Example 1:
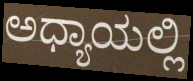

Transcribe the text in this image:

ಅಧ್ಯಾಯಲ್ಲಿ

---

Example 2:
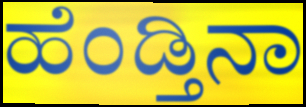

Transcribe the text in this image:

ಹೆಂಡ್ತಿನಾ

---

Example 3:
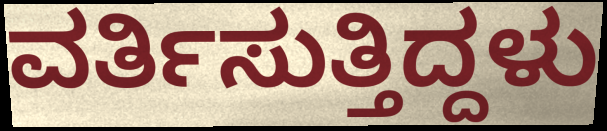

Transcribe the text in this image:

ವರ್ತಿಸುತ್ತಿದ್ದಳು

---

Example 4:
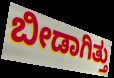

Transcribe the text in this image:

ಬೀಡಾಗಿತ್ತು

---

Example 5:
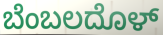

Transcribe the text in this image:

ಬೆಂಬಲದೊಳ್